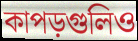
কাপড়গুলিও